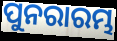
ପୁନରାରମ୍ଭ